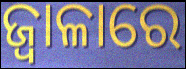
ଜ୍ୱାଳାରେ